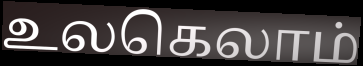
உலகெலாம்